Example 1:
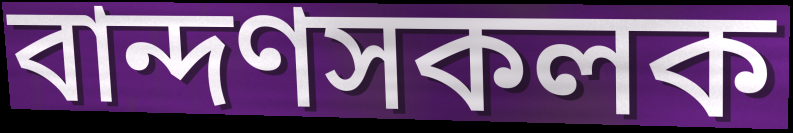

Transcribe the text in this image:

বান্দণসকলক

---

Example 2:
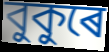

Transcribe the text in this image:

বুকুৰে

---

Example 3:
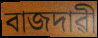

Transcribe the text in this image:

বাজদাৱী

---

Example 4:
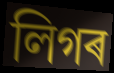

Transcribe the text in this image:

লিগৰ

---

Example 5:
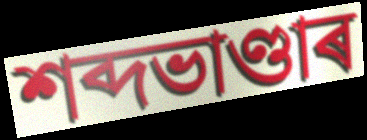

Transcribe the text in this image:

শব্দভাণ্ডাৰ